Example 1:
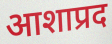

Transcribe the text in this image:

आशाप्रद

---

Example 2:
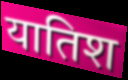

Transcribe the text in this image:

यातिश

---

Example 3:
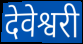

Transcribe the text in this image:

देवेश्वरी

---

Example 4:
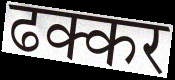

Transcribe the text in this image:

ढक्कर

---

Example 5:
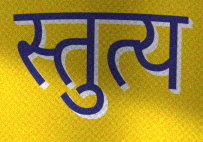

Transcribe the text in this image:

स्तुत्य